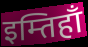
इम्तिहाँ